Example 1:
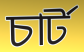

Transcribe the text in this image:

চাৰ্ট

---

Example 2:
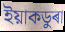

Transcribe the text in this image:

ইয়াকডুৰা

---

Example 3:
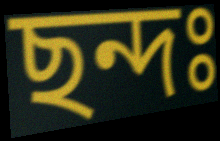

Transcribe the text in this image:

ছন্দঃ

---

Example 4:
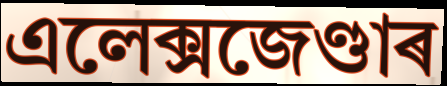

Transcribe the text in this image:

এলেক্সজেণ্ডাৰ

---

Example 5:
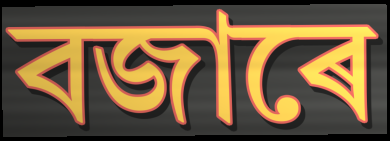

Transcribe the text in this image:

বজাৰে